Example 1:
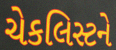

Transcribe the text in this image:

ચેકલિસ્ટને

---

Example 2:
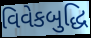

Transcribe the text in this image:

વિવેકબુદ્ધિ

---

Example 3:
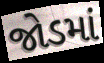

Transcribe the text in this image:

જોડમાં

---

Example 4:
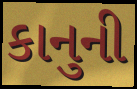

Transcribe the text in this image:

કાનુની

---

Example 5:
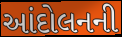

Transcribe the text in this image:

આંદોલનની